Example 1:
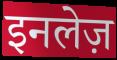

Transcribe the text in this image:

इनलेज़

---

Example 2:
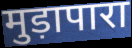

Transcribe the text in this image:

मुड़ापारा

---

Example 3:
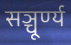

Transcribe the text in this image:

सञ्चूर्ण्य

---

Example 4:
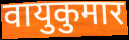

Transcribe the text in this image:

वायुकुमार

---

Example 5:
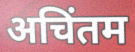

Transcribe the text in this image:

अचिंतम